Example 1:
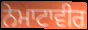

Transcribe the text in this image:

ਨੇਮਾਟਾਵੀਰ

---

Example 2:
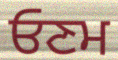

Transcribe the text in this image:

ਓਣਮ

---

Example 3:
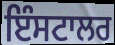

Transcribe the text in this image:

ਇੰਸਟਾਲਰ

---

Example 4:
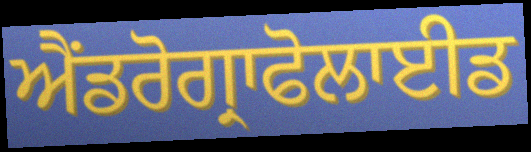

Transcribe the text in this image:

ਐਂਡਰੋਗ੍ਰਾਫੋਲਾਈਡ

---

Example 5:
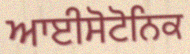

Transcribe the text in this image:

ਆਈਸੋਟੋਨਿਕ